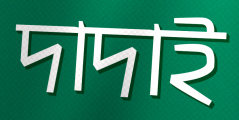
দাদাই